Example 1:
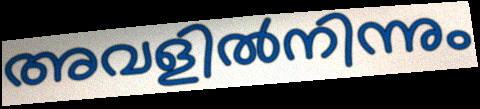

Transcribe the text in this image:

അവളിൽനിന്നും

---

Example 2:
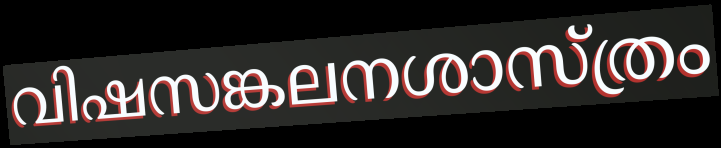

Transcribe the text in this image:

വിഷസങ്കലനശാസ്ത്രം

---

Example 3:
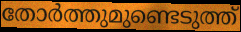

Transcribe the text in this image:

തോർത്തുമുണ്ടെടുത്ത്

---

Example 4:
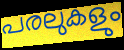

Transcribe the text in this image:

പരലുകളും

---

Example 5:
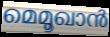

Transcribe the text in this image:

മെമൂഖാൻ